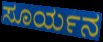
ಸೂರ್ಯನ